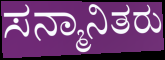
ಸನ್ಮಾನಿತರು